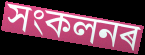
সংকলনৰ